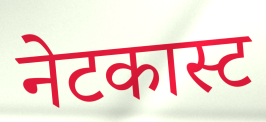
नेटकास्ट